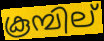
കൂമ്പില്